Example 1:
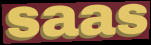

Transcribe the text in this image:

saas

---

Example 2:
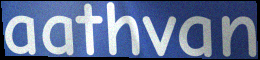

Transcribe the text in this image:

aathvan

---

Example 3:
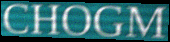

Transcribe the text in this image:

CHOGM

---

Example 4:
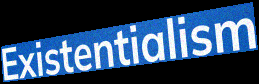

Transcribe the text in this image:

Existentialism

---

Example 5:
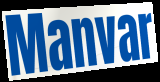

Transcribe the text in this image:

Manvar